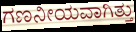
ಗಣನೀಯವಾಗಿತ್ತು